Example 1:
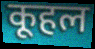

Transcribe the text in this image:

कूहल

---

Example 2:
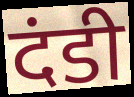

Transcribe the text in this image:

दंडी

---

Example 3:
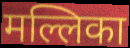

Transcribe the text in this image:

मल्लिका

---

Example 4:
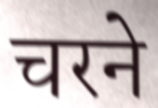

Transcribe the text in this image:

चरने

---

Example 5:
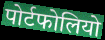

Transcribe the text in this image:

पोर्टफोलियो